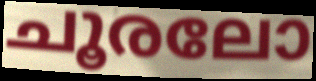
ചൂരലോ